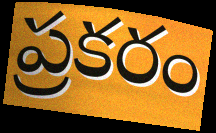
ప్రకరం